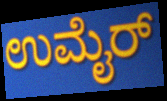
ಉಮೈರ್